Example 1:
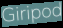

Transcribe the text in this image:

Giripod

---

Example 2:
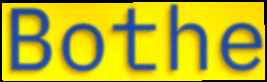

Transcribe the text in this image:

Bothe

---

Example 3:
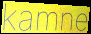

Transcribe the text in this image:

kamne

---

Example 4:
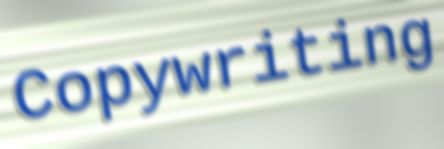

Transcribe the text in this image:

Copywriting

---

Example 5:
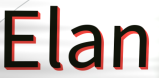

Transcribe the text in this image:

Elan